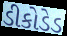
ડીકોડેડ